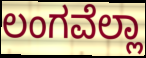
ಲಂಗವೆಲ್ಲಾ